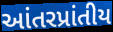
આંતરપ્રાંતીય